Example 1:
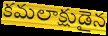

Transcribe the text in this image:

కమలాక్షుడైన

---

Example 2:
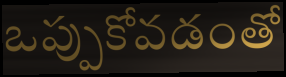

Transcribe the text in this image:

ఒప్పుకోవడంతో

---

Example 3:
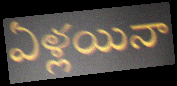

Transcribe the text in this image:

ఏళ్లయినా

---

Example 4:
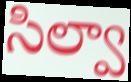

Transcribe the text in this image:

సిల్వా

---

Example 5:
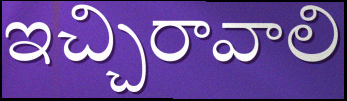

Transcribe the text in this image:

ఇచ్చిరావాలి